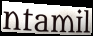
ntamil